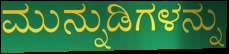
ಮುನ್ನುಡಿಗಳನ್ನು